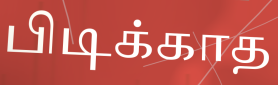
பிடிக்காத